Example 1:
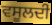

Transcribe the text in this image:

ਵਸੂਲਦੀ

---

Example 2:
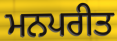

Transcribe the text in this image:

ਮਨਪਰੀਤ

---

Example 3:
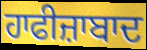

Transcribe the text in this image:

ਹਾਫੀਜ਼ਾਬਾਦ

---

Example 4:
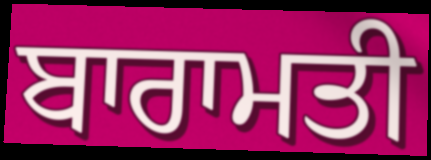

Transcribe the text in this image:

ਬਾਰਾਮਤੀ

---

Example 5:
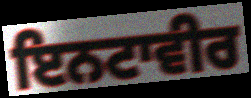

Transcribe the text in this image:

ਇਨਟਾਵੀਰ